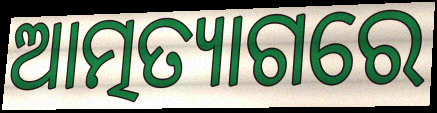
ଆତ୍ମତ୍ୟାଗରେ